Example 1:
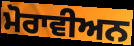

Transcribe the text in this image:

ਮੋਰਾਵੀਅਨ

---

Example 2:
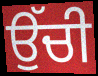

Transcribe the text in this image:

ਉੱਚੀ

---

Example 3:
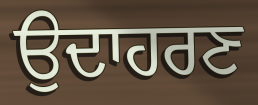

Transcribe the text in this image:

ਉਦਾਹਰਣ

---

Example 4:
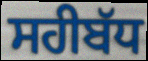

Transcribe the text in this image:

ਸਹੀਬੱਧ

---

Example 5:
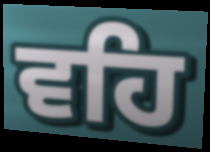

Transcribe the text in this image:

ਵਹਿ